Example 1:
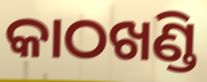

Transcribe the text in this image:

କାଠଖଣ୍ଡି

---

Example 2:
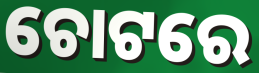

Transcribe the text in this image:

ଚୋଟରେ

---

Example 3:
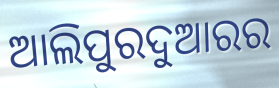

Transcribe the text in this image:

ଆଲିପୁରଦୁଆରର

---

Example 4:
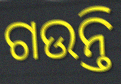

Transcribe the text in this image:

ଗଉନ୍ତି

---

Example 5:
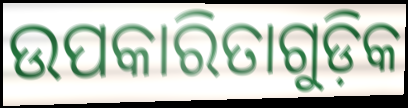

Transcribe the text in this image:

ଉପକାରିତାଗୁଡ଼ିକ